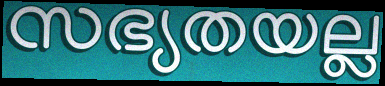
സഭ്യതയല്ല